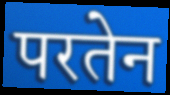
परतेन